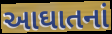
આઘાતનાં